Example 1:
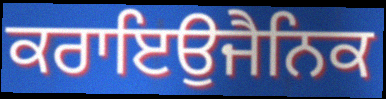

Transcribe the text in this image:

ਕਰਾਇਉਜੈਨਿਕ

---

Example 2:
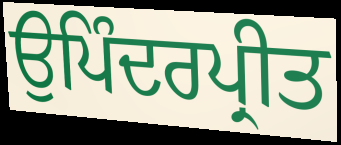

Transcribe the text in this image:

ਉਪਿੰਦਰਪ੍ਰੀਤ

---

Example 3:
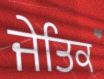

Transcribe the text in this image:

ਜੇਤਿਕ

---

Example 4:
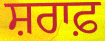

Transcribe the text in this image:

ਸ਼ਰਾਫ਼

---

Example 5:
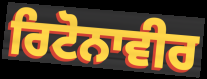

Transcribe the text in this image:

ਰਿਟੋਨਾਵੀਰ